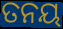
ତନୟ